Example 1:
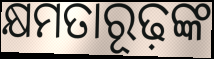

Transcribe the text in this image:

କ୍ଷମତାରୂଢ଼ଙ୍କ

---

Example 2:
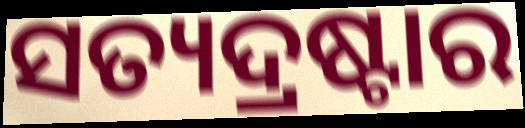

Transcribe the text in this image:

ସତ୍ୟଦ୍ରଷ୍ଟାର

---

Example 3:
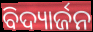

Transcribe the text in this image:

ବିଦ୍ୟାର୍ଜନ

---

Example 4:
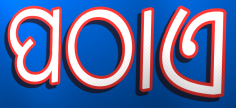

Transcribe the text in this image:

ପଠାଏ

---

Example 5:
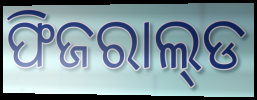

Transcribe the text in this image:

ଫିଜରାଲ୍‌ଡ